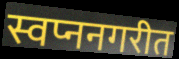
स्वप्ननगरीत